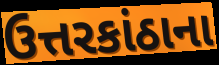
ઉત્તરકાંઠાના